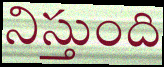
నిస్తుంది